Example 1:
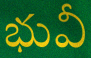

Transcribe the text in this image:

భువీ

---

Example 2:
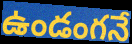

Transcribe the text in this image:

ఉండంగనే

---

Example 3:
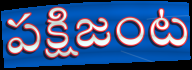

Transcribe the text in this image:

పక్షిజంట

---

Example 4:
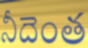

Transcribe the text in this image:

నీదెంత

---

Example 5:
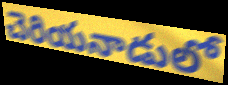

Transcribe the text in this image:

చెరియనాడులో